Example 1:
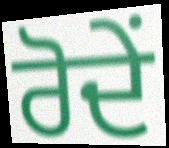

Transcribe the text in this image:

ਰੋਦੇਂ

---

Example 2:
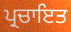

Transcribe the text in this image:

ਪ੍ਰਚਾਇਤ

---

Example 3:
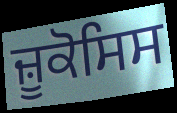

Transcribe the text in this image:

ਜ਼ੂਕੋਸਿਸ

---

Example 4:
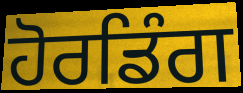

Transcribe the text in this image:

ਹੋਰਡਿੰਗ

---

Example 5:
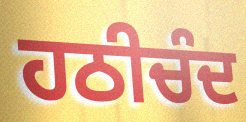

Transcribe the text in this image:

ਹਠੀਚੰਦ